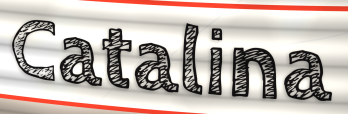
Catalina